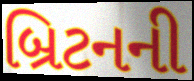
બ્રિટનની